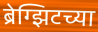
ब्रेग्झिटच्या